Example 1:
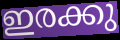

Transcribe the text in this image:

ഇരക്കു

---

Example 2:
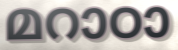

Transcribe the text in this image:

മറാഠാ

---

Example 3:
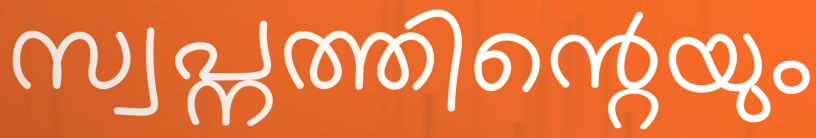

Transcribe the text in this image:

സ്വപ്നത്തിന്റെയും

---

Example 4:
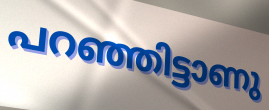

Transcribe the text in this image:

പറഞ്ഞിട്ടാണു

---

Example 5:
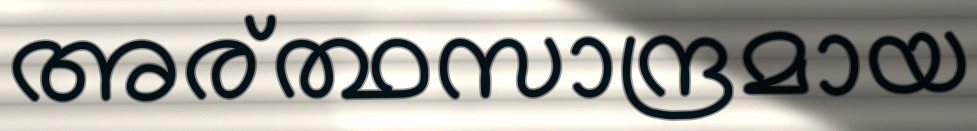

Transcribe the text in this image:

അര്ത്ഥസാന്ദ്രമായ